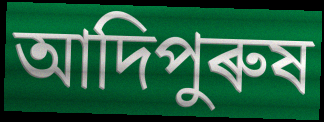
আদিপুৰুষ